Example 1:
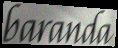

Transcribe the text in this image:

baranda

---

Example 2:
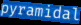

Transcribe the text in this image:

pyramidal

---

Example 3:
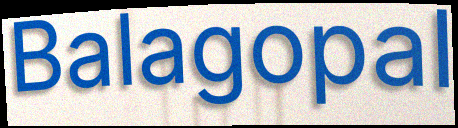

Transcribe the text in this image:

Balagopal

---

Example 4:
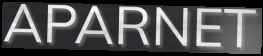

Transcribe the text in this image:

APARNET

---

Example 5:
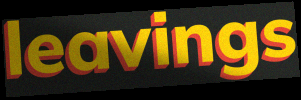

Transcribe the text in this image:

leavings